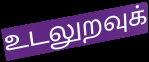
உடலுறவுக்